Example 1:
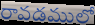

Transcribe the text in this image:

రావడములో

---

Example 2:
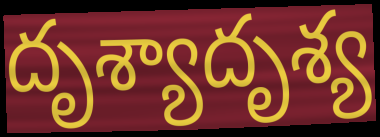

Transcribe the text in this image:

దృశ్యాదృశ్య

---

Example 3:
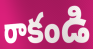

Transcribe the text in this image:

రాకండి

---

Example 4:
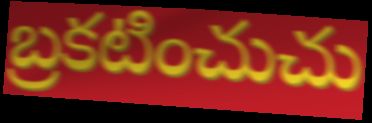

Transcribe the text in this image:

బ్రకటించుచు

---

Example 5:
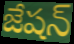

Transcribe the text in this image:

జేషన్